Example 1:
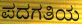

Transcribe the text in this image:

ಪದಗತಿಯ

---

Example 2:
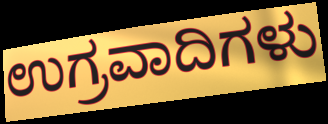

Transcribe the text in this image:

ಉಗ್ರವಾದಿಗಳು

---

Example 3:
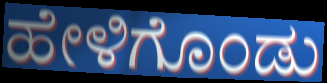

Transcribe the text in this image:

ಹೇಳಿಗೊಂಡು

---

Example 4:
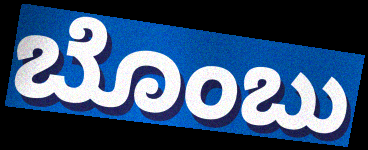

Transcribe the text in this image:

ಬೊಂಬು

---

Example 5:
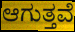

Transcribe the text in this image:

ಆಗುತ್ತವೆ